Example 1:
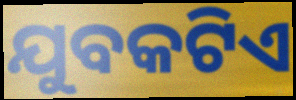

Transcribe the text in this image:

ଯୁବକଟିଏ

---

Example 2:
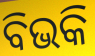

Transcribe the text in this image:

ବିଭକି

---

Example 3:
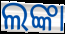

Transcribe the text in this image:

ଲଙ୍କା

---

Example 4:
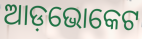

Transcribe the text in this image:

ଆଡ଼ଭୋକେଟ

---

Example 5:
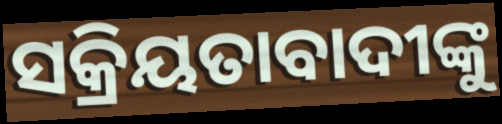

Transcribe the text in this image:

ସକ୍ରିୟତାବାଦୀଙ୍କୁ